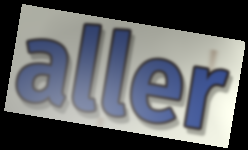
aller